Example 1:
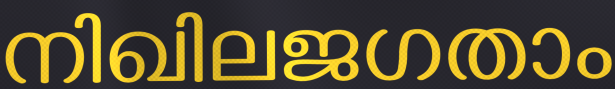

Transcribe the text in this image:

നിഖിലജഗതാം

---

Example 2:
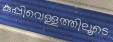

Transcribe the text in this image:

കുപ്പിവെള്ളത്തിലൂടെ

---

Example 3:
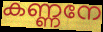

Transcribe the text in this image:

കണ്ണനേ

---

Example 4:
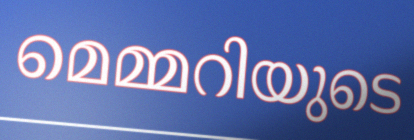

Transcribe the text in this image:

മെമ്മറിയുടെ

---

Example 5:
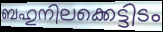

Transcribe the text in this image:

ബഹുനിലക്കെട്ടിടം